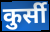
कुर्सी